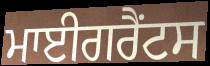
ਮਾਈਗਰੈਂਟਸ